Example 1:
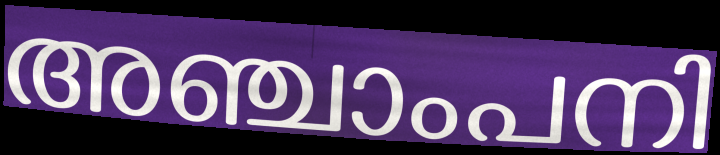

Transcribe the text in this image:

അഞ്ചാംപനി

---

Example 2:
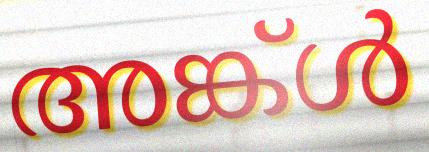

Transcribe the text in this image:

അങ്ക്ൾ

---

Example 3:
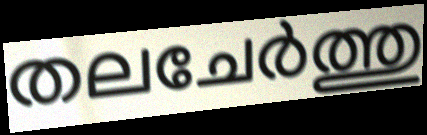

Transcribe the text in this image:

തലചേർത്തു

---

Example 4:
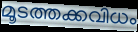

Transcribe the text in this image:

മൂടത്തക്കവിധം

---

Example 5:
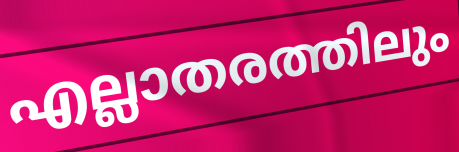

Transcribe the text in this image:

എല്ലാതരത്തിലും